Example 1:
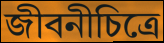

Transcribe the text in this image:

জীবনীচিত্রে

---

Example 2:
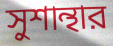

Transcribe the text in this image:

সুশান্থার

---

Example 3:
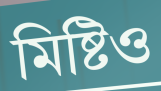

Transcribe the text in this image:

মিষ্টিও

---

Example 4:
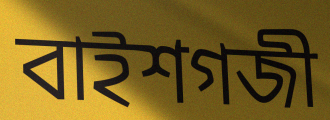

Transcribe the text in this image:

বাইশগজী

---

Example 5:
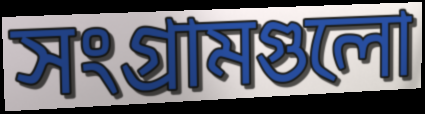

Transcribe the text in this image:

সংগ্রামগুলো